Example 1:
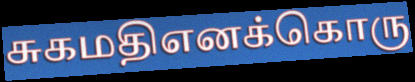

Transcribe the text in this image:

சுகமதிஎனக்கொரு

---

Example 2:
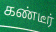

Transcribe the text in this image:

கண்டீர்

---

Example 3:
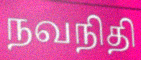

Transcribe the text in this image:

நவநிதி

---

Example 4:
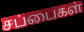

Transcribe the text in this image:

சப்பைகள்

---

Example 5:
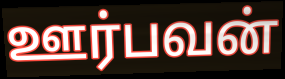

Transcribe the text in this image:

ஊர்பவன்